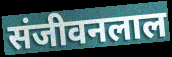
संजीवनलाल